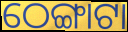
ଠେଙ୍ଗାଟା